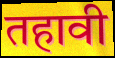
तहावी